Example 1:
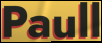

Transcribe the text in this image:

Paull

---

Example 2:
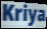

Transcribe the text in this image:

Kriya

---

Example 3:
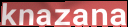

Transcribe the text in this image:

knazana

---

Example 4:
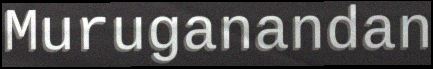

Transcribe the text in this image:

Muruganandan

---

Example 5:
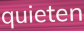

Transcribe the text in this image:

quieten